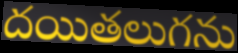
దయితలుగను